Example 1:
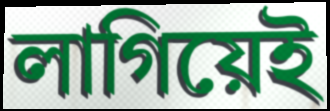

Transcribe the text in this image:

লাগিয়েই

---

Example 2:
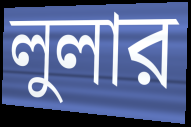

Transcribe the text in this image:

লুলার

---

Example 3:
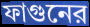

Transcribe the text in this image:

ফাগুনের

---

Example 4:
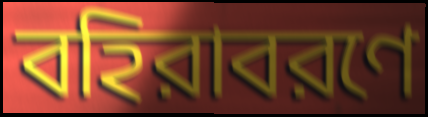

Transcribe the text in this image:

বহিরাবরণে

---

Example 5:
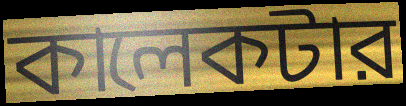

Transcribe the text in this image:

কালেকটার